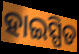
ହାଇସ୍ପିଡ